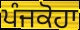
ਪੰਜਕੋਹਾ